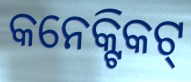
କନେକ୍ଟିକଟ୍